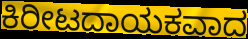
ಕಿರೀಟದಾಯಕವಾದ